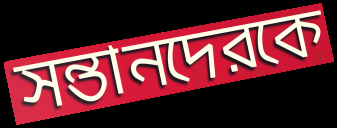
সন্তানদেরকে